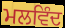
ਮਲਵਿੰਦ